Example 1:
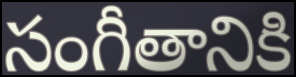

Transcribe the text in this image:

సంగీతానికి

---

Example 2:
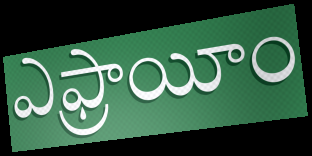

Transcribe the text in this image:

ఎఫ్రాయీం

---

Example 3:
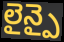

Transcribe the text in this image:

లైన్పై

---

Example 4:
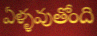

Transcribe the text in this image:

ఏళ్ళవుతోంది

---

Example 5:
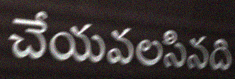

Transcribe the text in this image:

చేయవలసినది